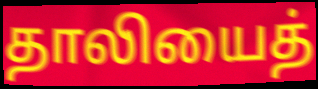
தாலியைத்